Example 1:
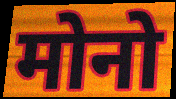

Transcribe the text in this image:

मोनो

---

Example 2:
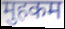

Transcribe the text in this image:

मुहकम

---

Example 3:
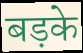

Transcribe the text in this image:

बड़के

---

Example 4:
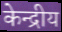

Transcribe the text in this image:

केन्द्रीय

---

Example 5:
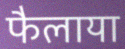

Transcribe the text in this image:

फैलाया